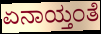
ಏನಾಯ್ತಂತೆ